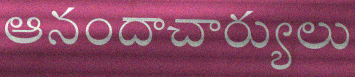
ఆనందాచార్యులు